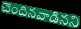
చెందినవాడినని